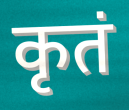
कृतं